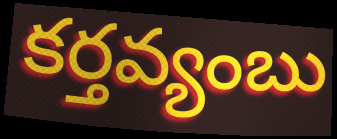
కర్తవ్యంబు